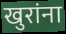
खुरांना